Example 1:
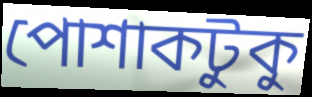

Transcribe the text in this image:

পোশাকটুকু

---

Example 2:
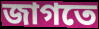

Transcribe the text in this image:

জাগতে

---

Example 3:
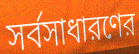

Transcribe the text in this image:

সর্বসাধারণের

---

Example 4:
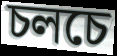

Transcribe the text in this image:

চলচে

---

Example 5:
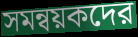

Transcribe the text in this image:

সমন্বয়কদের